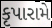
કૃપારામે